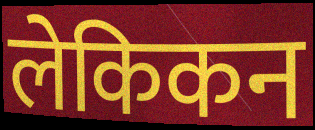
लेकिकन